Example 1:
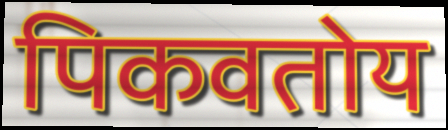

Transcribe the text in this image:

पिकवतोय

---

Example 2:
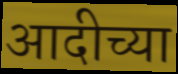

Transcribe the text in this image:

आदीच्या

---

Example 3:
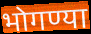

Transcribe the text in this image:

भोगण्या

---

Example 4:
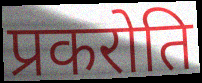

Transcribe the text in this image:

प्रकरोति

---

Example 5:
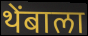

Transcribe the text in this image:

थेंबाला